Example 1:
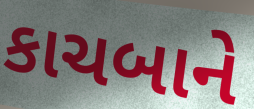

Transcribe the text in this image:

કાચબાને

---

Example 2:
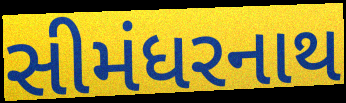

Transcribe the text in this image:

સીમંધરનાથ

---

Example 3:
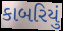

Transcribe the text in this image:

કાબરિયું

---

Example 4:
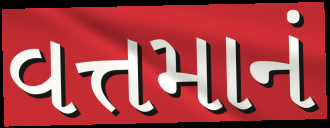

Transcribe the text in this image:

વત્તમાનં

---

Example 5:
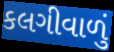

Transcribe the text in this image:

કલગીવાળું